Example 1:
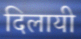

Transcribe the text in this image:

दिलायी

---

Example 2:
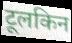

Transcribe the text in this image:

टूलकिन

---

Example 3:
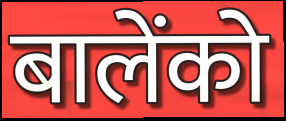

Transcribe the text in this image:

बालेंको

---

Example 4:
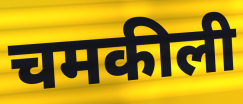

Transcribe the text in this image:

चमकीली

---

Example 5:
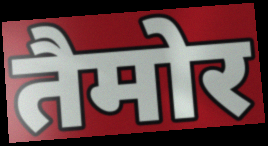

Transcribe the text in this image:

तैमोर